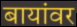
बायांवर